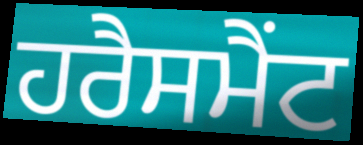
ਹਰੈਸਮੈਂਟ